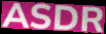
ASDR